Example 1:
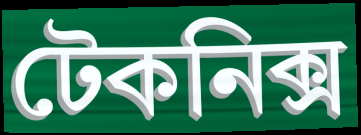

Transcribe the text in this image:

টেকনিক্স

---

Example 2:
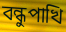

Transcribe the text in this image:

বন্ধুপাখি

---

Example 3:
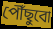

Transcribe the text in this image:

পৌঁছুবো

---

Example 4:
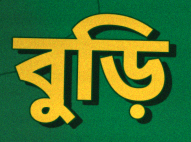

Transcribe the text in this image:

বুড়ি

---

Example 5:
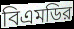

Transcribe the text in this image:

বিএমডির